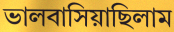
ভালবাসিয়াছিলাম